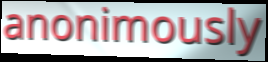
anonimously